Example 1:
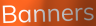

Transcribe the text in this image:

Banners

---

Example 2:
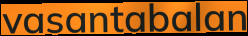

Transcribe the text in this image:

vasantabalan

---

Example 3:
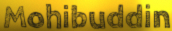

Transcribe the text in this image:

Mohibuddin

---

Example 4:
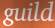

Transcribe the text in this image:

guild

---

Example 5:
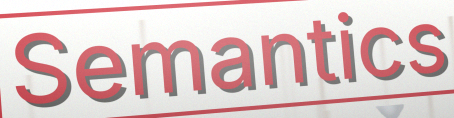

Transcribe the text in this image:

Semantics